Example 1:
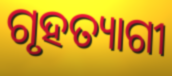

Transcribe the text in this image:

ଗୃହତ୍ୟାଗୀ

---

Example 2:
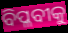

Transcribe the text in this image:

ବିପ୍ଳବୀକୁ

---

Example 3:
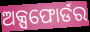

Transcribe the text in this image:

ଅକ୍ସଫୋର୍ଡର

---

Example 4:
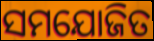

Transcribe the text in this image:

ସମଯୋଜିତ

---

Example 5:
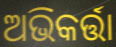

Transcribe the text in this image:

ଅଭିକର୍ତ୍ତା